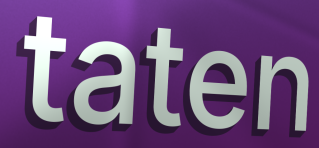
taten